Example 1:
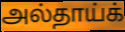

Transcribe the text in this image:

அல்தாய்க்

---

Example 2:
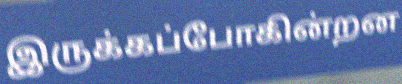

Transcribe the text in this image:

இருக்கப்போகின்றன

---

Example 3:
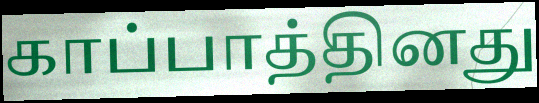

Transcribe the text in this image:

காப்பாத்தினது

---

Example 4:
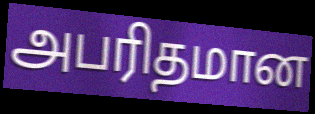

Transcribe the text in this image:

அபரிதமான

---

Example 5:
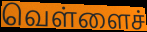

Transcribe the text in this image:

வெள்ளைச்